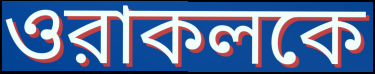
ওরাকলকে